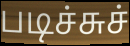
படிச்சுச்